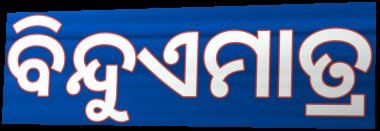
ବିନ୍ଦୁଏମାତ୍ର